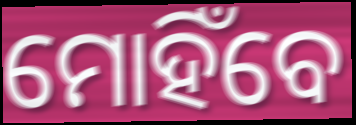
ମୋହିଁବେ